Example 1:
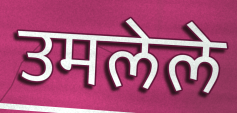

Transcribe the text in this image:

उमलेले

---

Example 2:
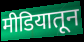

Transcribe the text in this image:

मीडियातून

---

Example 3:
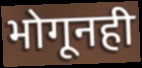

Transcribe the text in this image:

भोगूनही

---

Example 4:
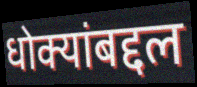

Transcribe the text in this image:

धोक्यांबद्दल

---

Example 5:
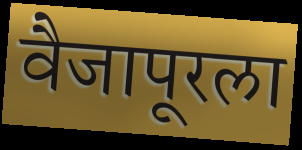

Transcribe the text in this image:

वैजापूरला